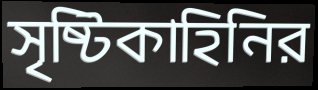
সৃষ্টিকাহিনির